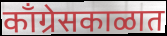
काँग्रेसकाळात